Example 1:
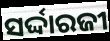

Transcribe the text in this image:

ସର୍ଦ୍ଦାରଜୀ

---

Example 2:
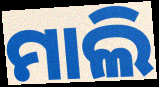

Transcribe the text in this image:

ମାଲି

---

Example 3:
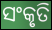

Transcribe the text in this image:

ସଂକୃତି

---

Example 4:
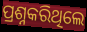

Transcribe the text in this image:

ପ୍ରଶ୍ନକରିଥିଲେ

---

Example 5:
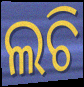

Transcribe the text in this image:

ଲଚି